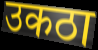
उकठा